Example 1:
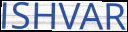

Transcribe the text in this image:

ISHVAR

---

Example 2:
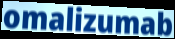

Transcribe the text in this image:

omalizumab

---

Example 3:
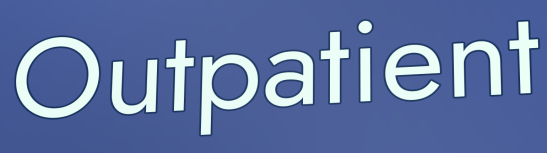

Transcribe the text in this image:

Outpatient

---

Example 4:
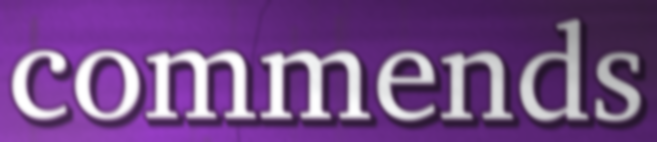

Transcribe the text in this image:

commends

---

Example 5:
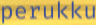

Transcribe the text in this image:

perukku